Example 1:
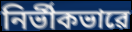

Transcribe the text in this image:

নিৰ্ভীকভাৱে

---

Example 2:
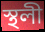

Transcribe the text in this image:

স্থলী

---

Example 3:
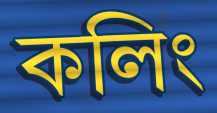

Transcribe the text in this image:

কলিং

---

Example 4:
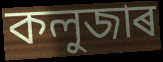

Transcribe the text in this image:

কলুজাৰ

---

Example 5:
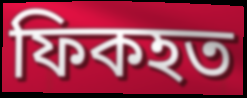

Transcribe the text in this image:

ফিকহত